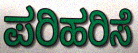
ಪರಿಹರಿಸೆ